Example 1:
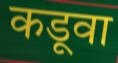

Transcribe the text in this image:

कडूवा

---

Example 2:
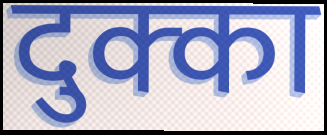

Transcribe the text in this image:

दुक्‍का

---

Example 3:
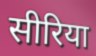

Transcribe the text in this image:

सीरिया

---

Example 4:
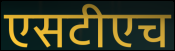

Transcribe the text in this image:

एसटीएच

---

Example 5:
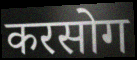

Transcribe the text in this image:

करसोग